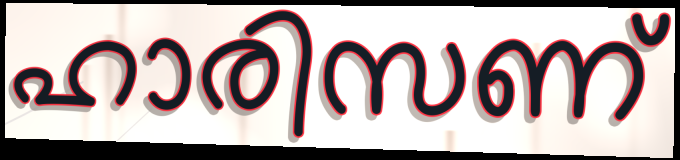
ഹാരിസണ്